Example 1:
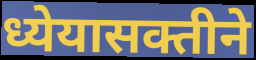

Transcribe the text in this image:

ध्येयासक्तीने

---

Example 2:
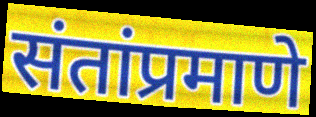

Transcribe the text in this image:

संतांप्रमाणे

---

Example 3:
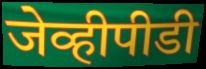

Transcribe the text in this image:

जेव्हीपीडी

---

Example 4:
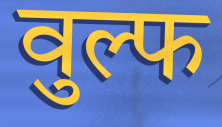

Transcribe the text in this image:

वुल्फ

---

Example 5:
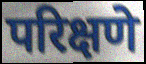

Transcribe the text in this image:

परिक्षणे